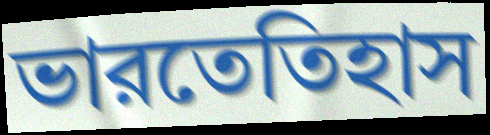
ভারতেতিহাস